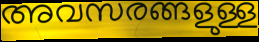
അവസരങ്ങളുള്ള